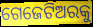
ଗେଜେଟିଅରକୁ